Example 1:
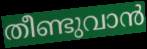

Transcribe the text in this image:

തീണ്ടുവാൻ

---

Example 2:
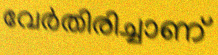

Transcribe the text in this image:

വേർതിരിച്ചാണ്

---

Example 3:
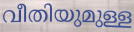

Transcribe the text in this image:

വീതിയുമുള്ള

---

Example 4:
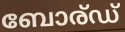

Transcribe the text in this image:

ബോര്ഡ്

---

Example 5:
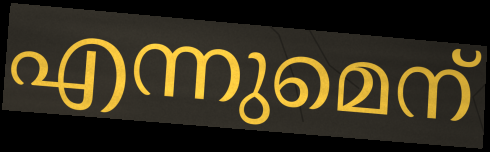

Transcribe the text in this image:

എന്നുമെന്